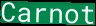
Carnot